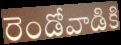
రెండోవాడికి